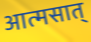
आत्मसात्